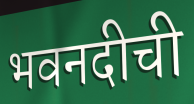
भवनदीची